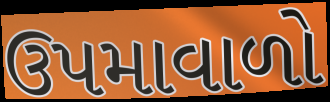
ઉપમાવાળો